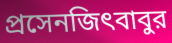
প্রসেনজিৎবাবুর